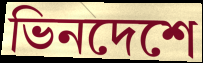
ভিনদেশে